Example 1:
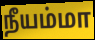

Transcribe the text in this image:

நீயம்மா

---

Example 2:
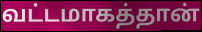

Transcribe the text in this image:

வட்டமாகத்தான்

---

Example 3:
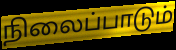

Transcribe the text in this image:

நிலைப்பாடும்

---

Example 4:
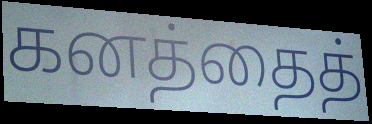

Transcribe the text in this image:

கனத்தைத்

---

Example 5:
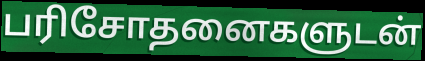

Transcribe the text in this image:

பரிசோதனைகளுடன்